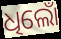
ଧିଲୋଁ